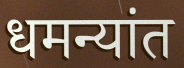
धमन्यांत